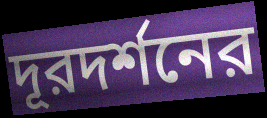
দূরদর্শনের